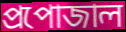
প্রপোজাল